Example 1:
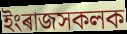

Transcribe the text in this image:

ইংৰাজসকলক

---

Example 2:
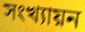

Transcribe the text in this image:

সংখ্যায়ন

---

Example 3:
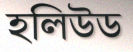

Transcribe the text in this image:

হলিউড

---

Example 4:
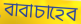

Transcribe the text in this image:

বাবাচাহেব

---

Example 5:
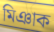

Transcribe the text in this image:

মিঞাক